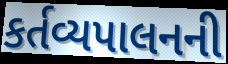
કર્તવ્યપાલનની